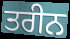
ਤਰੀਨ